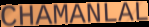
CHAMANLAL